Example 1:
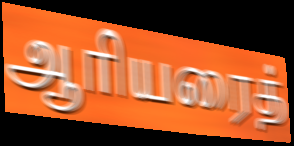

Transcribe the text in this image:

ஆரியரைத்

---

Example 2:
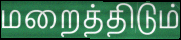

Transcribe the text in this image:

மறைத்திடும்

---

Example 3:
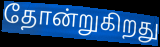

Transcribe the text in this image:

தோன்றுகிறது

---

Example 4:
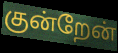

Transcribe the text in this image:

குன்றேன்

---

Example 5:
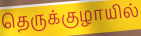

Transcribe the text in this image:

தெருக்குழாயில்